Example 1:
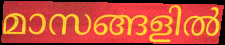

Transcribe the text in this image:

മാസങ്ങളിൽ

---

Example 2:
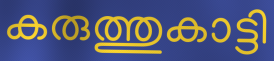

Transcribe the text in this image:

കരുത്തുകാട്ടി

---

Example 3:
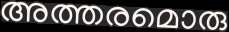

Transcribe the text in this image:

അത്തരമൊരു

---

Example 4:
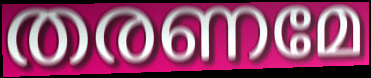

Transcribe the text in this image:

തരണമേ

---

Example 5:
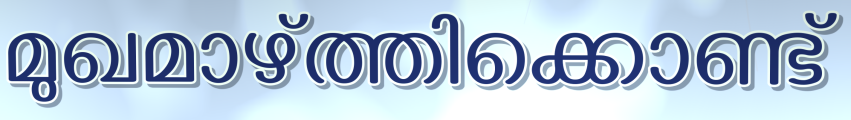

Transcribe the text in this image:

മുഖമാഴ്ത്തിക്കൊണ്ട്